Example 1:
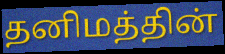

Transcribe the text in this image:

தனிமத்தின்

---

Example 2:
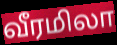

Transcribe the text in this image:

வீரமிலா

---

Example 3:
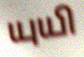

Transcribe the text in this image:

யுயி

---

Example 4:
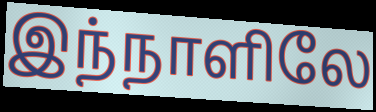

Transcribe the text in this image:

இந்நாளிலே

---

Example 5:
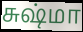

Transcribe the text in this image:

சுஷ்மா